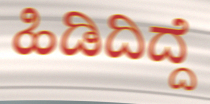
ಹಿಡಿದಿದ್ದೆ